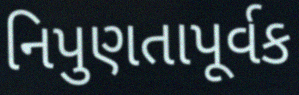
નિપુણતાપૂર્વક